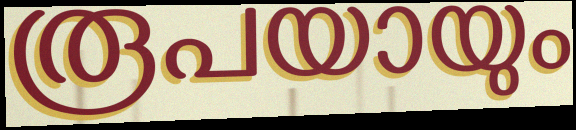
രൂപയായും